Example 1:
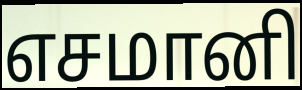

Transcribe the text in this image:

எசமானி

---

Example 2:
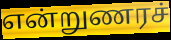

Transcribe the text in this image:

என்றுணரச்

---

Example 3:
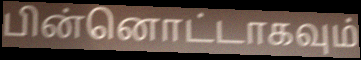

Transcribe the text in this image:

பின்னொட்டாகவும்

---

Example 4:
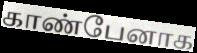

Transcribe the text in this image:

காண்பேனாக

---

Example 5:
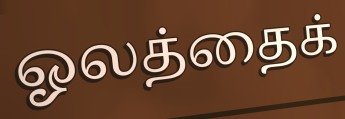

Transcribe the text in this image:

ஓலத்தைக்